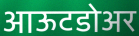
आऊटडोअर